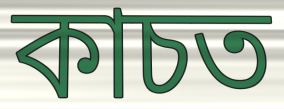
কাচত